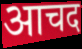
आचद